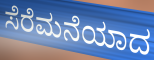
ಸೆರೆಮನೆಯಾದ